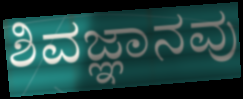
ಶಿವಜ್ಞಾನವು